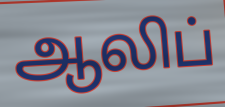
ஆலிப்